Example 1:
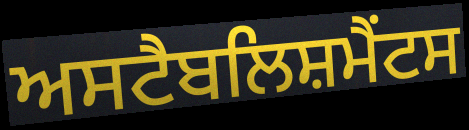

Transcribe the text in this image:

ਅਸਟੈਬਲਿਸ਼ਮੈਂਟਸ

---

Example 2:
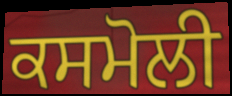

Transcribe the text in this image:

ਕਸਮੋਲੀ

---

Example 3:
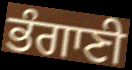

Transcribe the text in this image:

ਭੰਗਾਣੀ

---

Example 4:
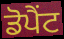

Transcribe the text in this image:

ਡੋਪੈਂਟ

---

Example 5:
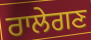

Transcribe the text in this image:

ਰਾਲੇਗਣ